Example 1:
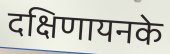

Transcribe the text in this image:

दक्षिणायनके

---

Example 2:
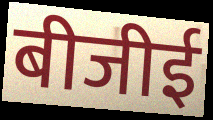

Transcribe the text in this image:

बीजीई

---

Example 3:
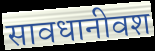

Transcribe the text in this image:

सावधानीवश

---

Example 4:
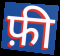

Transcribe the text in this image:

फ़ी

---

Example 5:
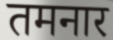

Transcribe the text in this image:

तमनार